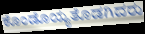
ಕೊಂಡೊಯ್ಯತೊಡಗಿದರು